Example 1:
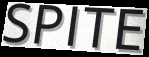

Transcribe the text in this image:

SPITE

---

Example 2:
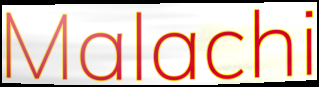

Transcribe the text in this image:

Malachi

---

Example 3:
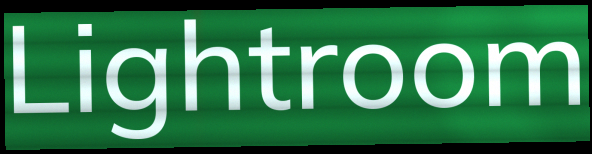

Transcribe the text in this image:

Lightroom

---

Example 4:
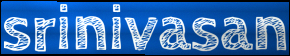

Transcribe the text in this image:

srinivasan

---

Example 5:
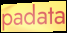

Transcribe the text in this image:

padata